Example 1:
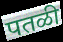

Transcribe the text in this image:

पतळी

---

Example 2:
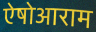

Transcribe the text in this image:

ऐषोआराम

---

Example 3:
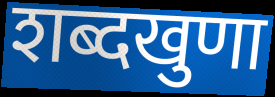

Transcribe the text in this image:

शब्दखुणा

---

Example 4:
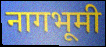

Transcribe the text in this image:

नागभूमी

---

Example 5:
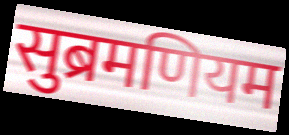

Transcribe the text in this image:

सुब्रमणियम